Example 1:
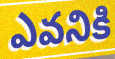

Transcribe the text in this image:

ఎవనికి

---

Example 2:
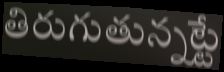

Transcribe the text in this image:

తిరుగుతున్నట్టే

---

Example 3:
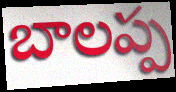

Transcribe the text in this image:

బాలప్ప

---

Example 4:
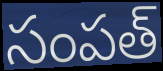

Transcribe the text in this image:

సంపత్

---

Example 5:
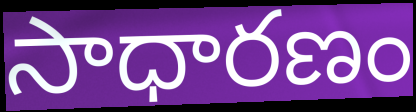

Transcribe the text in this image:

సాధారణం